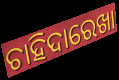
ଚାହିଦାରେଖା